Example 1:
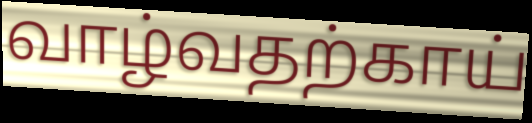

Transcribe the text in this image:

வாழ்வதற்காய்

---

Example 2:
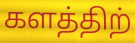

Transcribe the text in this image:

களத்திற்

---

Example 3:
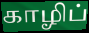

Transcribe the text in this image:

காழிப்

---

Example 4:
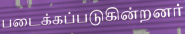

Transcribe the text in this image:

படைக்கப்படுகின்றனர்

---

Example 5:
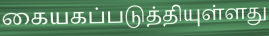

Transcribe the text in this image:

கையகப்படுத்தியுள்ளது